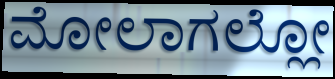
ಮೋಲಾಗಲ್ಲೋ